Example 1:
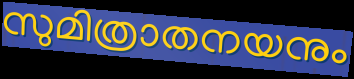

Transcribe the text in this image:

സുമിത്രാതനയനും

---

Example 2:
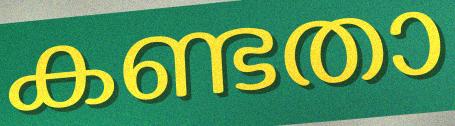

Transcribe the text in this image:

കണ്ടതാ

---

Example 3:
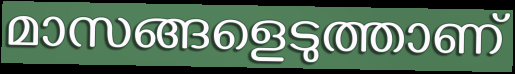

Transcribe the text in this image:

മാസങ്ങളെടുത്താണ്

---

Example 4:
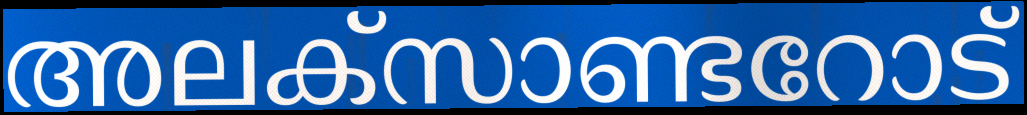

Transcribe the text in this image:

അലക്സാണ്ടറോട്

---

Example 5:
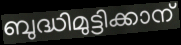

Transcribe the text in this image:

ബുദ്ധിമുട്ടിക്കാന്